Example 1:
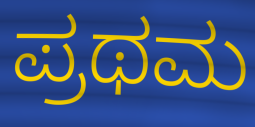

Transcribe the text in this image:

ಪ್ರಥಮ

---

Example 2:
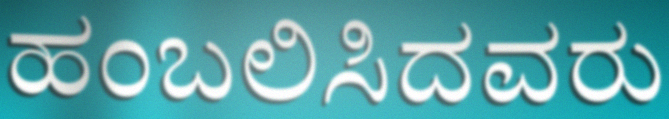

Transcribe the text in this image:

ಹಂಬಲಿಸಿದವರು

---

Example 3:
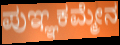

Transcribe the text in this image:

ಪುಞ್ಞಕಮ್ಮೇನ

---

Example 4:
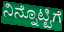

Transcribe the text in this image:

ನಿನ್ನೊಟ್ಟಿಗೆ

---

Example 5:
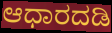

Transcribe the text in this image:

ಆಧಾರದಡಿ